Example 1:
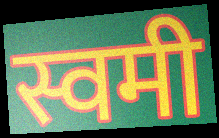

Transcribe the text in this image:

स्वमी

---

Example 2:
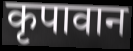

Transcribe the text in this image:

कृपावान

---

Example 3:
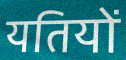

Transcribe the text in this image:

यतियों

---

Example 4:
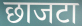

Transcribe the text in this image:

छाजटा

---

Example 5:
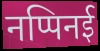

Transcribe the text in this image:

नप्पिनई